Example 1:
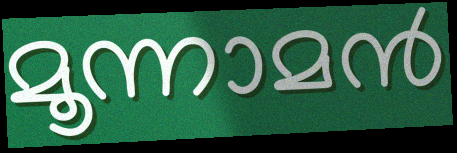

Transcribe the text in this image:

മൂന്നാമൻ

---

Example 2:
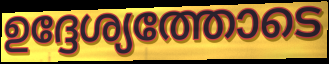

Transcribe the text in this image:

ഉദ്ദേശ്യത്തോടെ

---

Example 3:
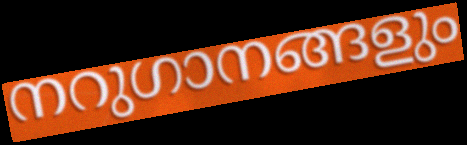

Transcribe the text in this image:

നറുഗാനങ്ങളും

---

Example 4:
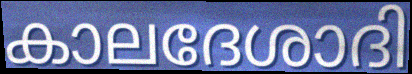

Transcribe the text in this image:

കാലദേശാദി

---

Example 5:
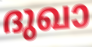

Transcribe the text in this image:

ദുഖാ